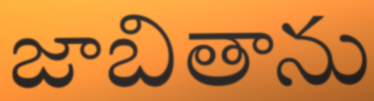
జాబితాను